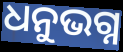
ଧନୁଭଗ୍ନ